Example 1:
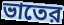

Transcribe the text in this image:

ভাতের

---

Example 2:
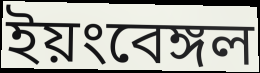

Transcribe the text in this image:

ইয়ংবেঙ্গল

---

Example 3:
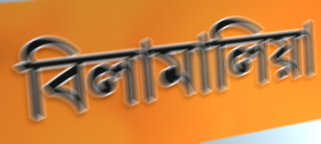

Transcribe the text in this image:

বিলামালিয়া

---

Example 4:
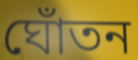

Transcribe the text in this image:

ঘোঁতন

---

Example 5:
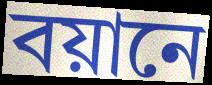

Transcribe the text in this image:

বয়ানে